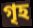
গৃহ